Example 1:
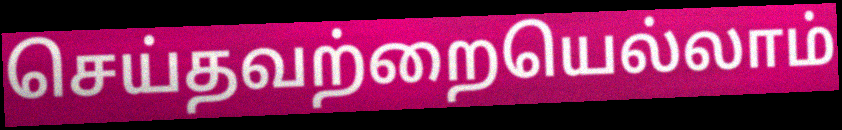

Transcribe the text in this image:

செய்தவற்றையெல்லாம்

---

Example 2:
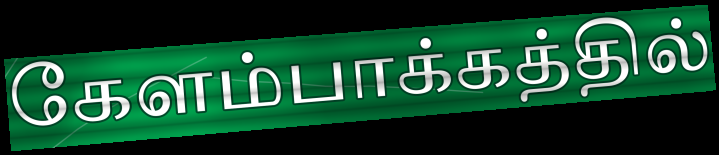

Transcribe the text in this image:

கேளம்பாக்கத்தில்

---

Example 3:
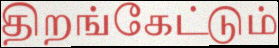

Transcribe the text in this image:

திறங்கேட்டும்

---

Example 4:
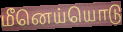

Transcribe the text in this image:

மீனெய்யொடு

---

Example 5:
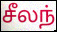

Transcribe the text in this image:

சீலந்